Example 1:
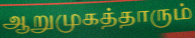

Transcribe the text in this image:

ஆறுமுகத்தாரும்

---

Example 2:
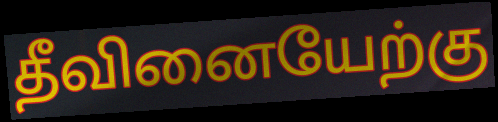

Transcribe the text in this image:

தீவினையேற்கு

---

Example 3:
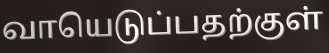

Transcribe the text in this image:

வாயெடுப்பதற்குள்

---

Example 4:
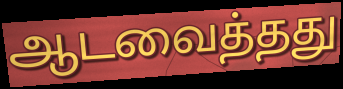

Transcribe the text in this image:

ஆடவைத்தது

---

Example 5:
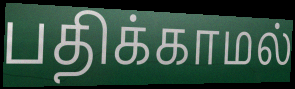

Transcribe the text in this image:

பதிக்காமல்